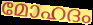
മോഹദം